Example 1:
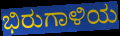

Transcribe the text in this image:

ಭಿರುಗಾಳಿಯ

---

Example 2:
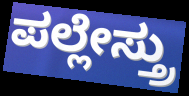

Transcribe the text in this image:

ಪಲ್ಲೇಸ್ತ್ರು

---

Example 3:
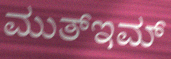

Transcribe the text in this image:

ಮುತ್ಇಮ್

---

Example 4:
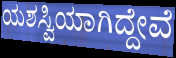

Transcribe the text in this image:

ಯಶಸ್ವಿಯಾಗಿದ್ದೇವೆ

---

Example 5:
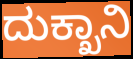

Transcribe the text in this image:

ದುಕ್ಖಾನಿ